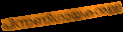
പിന്നണിഗായകനുള്ള